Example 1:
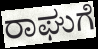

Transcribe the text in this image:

ರಾಘುಗೆ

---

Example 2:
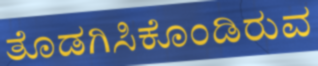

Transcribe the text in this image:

ತೊಡಗಿಸಿಕೊಂಡಿರುವ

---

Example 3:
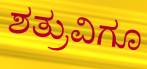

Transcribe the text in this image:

ಶತ್ರುವಿಗೂ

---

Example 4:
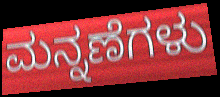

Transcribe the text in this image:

ಮನ್ನಣೆಗಳು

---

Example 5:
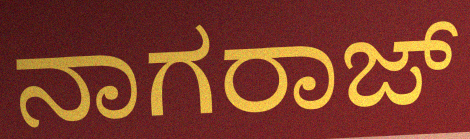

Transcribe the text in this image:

ನಾಗರಾಜ್